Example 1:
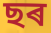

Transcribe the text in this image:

ছৰ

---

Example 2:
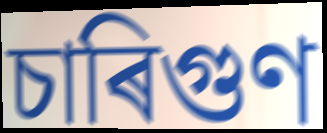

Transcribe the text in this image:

চাৰিগুণ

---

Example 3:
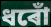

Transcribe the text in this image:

ধৰোঁ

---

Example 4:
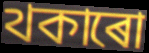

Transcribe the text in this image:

থকাৰো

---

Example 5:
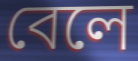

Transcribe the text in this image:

বেলে